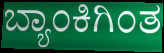
ಬ್ಯಾಂಕಿಗಿಂತ